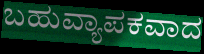
ಬಹುವ್ಯಾಪಕವಾದ